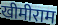
खीमीराम